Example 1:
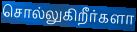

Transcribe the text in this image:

சொல்லுகிறீர்களா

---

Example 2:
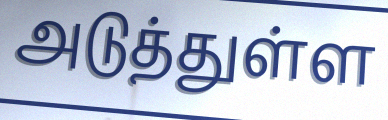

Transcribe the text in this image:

அடுத்துள்ள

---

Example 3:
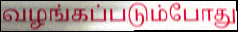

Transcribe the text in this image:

வழங்கப்படும்போது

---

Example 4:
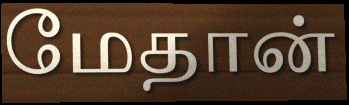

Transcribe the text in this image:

மேதான்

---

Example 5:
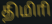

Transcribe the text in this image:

திமிரி